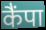
कैंपा